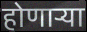
होणार्‍या